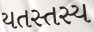
યતસ્તસ્ય